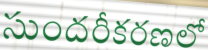
సుందరీకరణలో